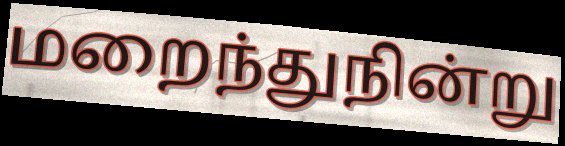
மறைந்துநின்று